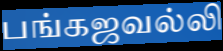
பங்கஜவல்லி